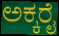
ಅಕ್ಕರೈ